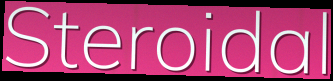
Steroidal